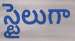
స్టైలుగా